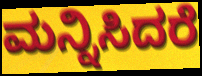
ಮನ್ನಿಸಿದರೆ